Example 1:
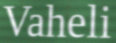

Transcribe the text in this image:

Vaheli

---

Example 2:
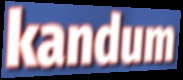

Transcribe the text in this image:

kandum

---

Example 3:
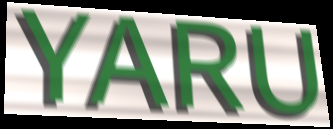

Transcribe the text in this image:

YARU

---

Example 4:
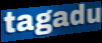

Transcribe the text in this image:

tagadu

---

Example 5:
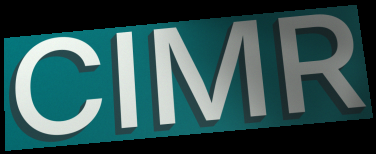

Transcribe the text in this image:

CIMR